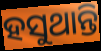
ହସୁଥାନ୍ତି